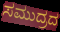
ಸಮುದ್ರದ